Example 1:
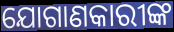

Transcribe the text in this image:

ଯୋଗାଣକାରୀଙ୍କ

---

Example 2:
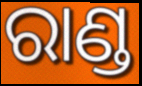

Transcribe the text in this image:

ରାଣ୍ଡ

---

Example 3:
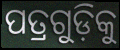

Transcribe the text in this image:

ପତ୍ରଗୁଡ଼ିକୁ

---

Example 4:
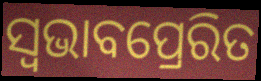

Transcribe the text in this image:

ସ୍ୱଭାବପ୍ରେରିତ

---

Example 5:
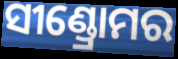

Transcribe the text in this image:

ସୀଣ୍ଡ୍ରୋମର